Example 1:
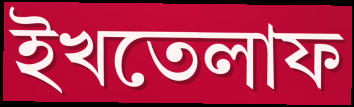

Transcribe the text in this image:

ইখতেলাফ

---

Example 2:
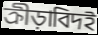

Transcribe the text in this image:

ক্রীড়াবিদই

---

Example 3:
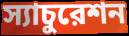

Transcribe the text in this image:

স্যাচুরেশন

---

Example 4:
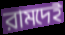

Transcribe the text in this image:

রামদেই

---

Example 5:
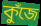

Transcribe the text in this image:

কুঁজে